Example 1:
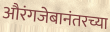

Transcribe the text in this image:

औरंगजेबानंतरच्या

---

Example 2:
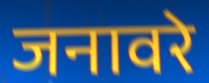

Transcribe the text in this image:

जनावरे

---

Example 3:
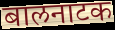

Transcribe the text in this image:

बालनाटक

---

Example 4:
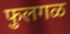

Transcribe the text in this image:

फुलगळ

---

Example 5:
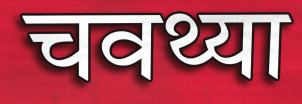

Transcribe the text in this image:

चवथ्या